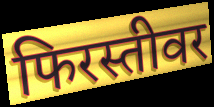
फिरस्तीवर